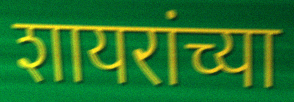
शायरांच्या